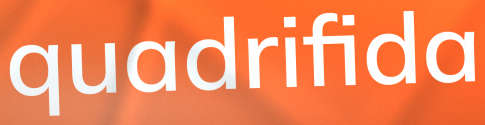
quadrifida